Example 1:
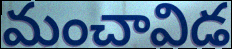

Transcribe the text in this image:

మంచావిడ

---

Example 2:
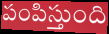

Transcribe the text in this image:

పంపిస్తుంది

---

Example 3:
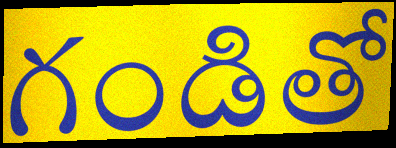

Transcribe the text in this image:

గండితో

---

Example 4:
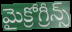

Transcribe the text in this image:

మైక్రోగ్రీన్స్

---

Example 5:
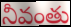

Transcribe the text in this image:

నీవంతు